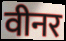
वीनर